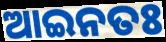
ଆଇନତଃ